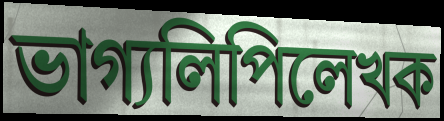
ভাগ্যলিপিলেখক